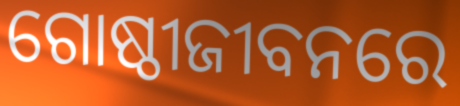
ଗୋଷ୍ଠୀଜୀବନରେ